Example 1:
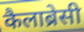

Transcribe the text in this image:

कैलाब्रेसी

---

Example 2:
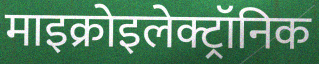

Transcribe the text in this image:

माइक्रोइलेक्ट्रॉनिक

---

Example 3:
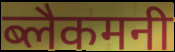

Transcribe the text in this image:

ब्लैकमनी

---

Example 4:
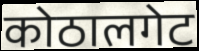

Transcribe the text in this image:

कोठालगेट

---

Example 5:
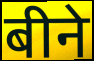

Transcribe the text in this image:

बीने